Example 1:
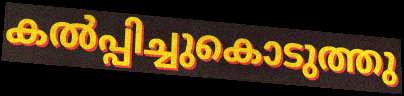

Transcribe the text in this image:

കൽപ്പിച്ചുകൊടുത്തു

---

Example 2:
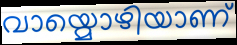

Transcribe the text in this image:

വായ്മൊഴിയാണ്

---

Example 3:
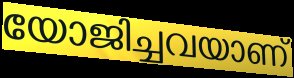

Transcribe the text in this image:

യോജിച്ചവയാണ്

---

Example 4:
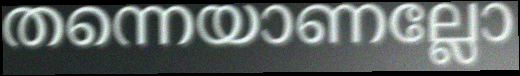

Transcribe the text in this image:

തന്നെയാണല്ലോ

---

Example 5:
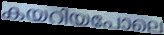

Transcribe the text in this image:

കയറിയപോലെ